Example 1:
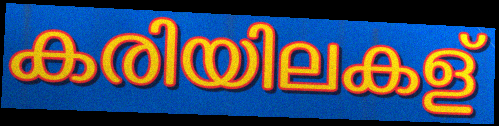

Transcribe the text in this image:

കരിയിലകള്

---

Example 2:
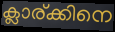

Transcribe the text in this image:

ക്ലാര്ക്കിനെ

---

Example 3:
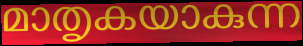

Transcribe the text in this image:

മാതൃകയാകുന്ന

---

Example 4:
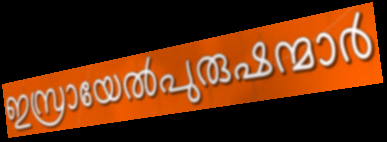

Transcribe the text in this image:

ഇസ്രായേൽപുരുഷന്മാർ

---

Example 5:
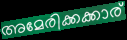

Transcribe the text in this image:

അമേരിക്കക്കാര്